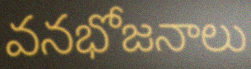
వనభోజనాలు